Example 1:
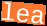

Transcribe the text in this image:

lea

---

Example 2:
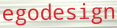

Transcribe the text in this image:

egodesign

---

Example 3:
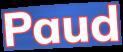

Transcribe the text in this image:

Paud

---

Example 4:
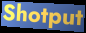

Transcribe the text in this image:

Shotput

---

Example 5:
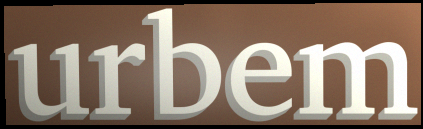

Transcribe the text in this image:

urbem